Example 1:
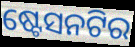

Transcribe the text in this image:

ଷ୍ଟେସନଟିର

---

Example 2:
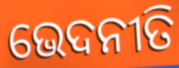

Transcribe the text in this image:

ଭେଦନୀତି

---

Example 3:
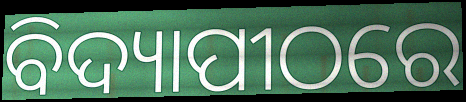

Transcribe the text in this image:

ବିଦ୍ୟାପୀଠରେ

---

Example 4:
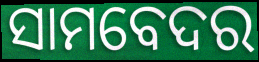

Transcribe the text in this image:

ସାମବେଦର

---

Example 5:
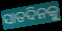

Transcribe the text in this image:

ସାତଦିନକୁ